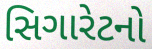
સિગારેટનો